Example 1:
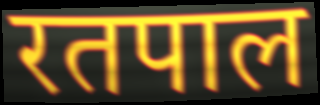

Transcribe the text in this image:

रतपाल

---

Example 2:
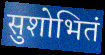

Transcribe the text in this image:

सुशोभितं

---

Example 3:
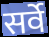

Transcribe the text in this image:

सर्वे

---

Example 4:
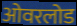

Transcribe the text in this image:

ओवरलोड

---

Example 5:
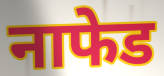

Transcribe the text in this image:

नाफेड